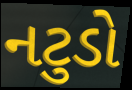
નટુડો